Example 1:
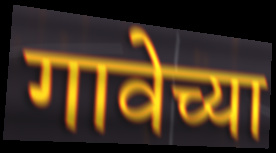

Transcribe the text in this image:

गावेच्या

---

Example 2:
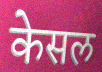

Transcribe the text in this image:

केसल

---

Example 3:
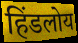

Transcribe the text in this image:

हिंडलोय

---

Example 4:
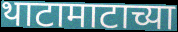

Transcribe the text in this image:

थाटामाटाच्या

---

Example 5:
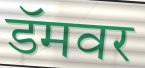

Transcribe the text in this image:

डॅमवर